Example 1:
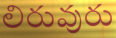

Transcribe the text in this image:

లిరువురు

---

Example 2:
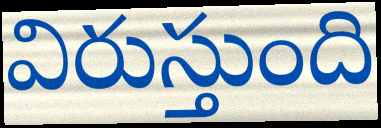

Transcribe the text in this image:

విరుస్తుంది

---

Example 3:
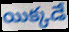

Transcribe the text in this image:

యిక్కడే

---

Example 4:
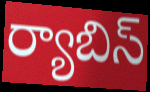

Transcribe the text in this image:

ర్యాబిస్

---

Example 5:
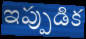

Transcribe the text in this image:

ఇప్పుడిక